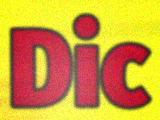
Dic